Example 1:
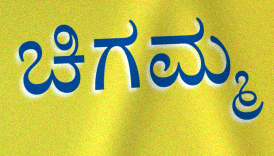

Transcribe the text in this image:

ಚಿಗಮ್ಮ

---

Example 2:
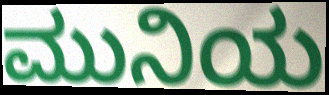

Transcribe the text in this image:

ಮುನಿಯ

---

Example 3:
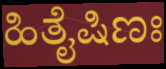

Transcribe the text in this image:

ಹಿತೈಷಿಣಃ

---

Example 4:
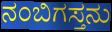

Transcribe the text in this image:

ನಂಬಿಗಸ್ತನು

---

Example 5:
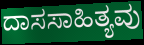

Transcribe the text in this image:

ದಾಸಸಾಹಿತ್ಯವು